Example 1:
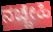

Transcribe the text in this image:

ನಚ್ಚೇಹಿ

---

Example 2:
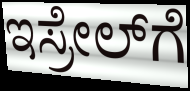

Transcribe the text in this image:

ಇಸ್ರೇಲ್‍ಗೆ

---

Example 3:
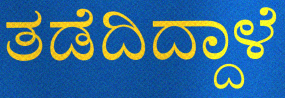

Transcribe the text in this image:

ತಡೆದಿದ್ದಾಳೆ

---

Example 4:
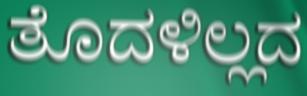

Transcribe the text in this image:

ತೊದಳಿಲ್ಲದ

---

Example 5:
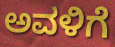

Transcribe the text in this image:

ಅವಳಿಗೆ